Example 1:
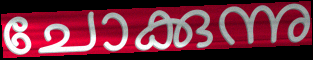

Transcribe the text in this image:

ചോക്കുന്നു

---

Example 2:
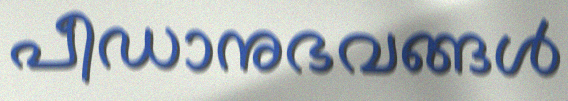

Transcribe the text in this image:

പീഡാനുഭവങ്ങൾ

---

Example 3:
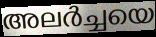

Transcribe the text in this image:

അലർച്ചയെ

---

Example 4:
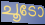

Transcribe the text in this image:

ചൂടോ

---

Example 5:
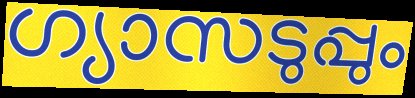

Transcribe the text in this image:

ഗ്യാസടുപ്പും